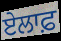
ਏਲਾਫ਼